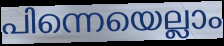
പിന്നെയെല്ലാം